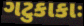
ગટુકાકાઃ